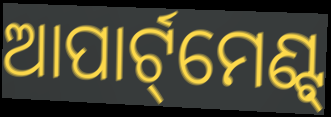
ଆପାର୍ଟ୍‌ମେଣ୍ଟ୍